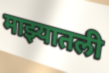
माझ्यातली